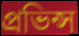
প্ৰভিন্স